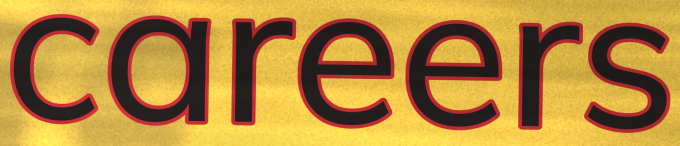
careers